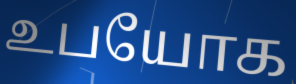
உபயோக